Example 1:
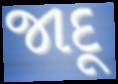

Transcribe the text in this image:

જાદૂ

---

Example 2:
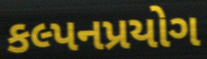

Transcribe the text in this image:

કલ્પનપ્રયોગ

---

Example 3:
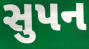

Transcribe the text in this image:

સુપન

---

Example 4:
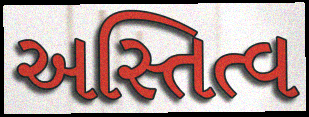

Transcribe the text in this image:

અસ્તિત્વ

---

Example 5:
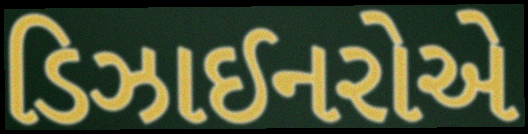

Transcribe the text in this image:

ડિઝાઈનરોએ